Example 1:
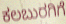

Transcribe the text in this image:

ಕಲಬುರಗಿಗೆ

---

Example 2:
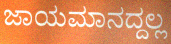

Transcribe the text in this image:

ಜಾಯಮಾನದ್ದಲ್ಲ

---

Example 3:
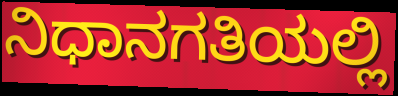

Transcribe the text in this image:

ನಿಧಾನಗತಿಯಲ್ಲಿ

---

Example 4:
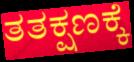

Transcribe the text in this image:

ತತಕ್ಷಣಕ್ಕೆ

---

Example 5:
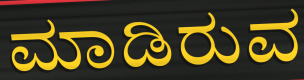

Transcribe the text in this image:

ಮಾಡಿರುವ